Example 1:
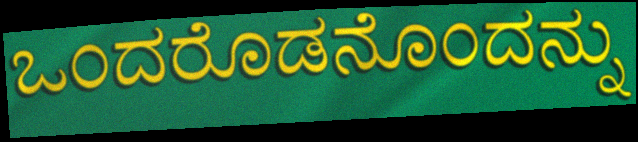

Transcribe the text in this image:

ಒಂದರೊಡನೊಂದನ್ನು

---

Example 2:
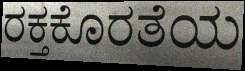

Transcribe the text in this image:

ರಕ್ತಕೊರತೆಯ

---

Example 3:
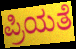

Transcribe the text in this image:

ಪ್ರಿಯತೆ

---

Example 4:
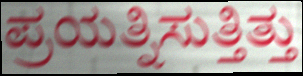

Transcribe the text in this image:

ಪ್ರಯತ್ನಿಸುತ್ತಿತ್ತು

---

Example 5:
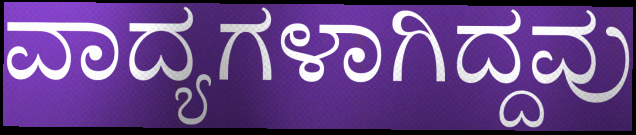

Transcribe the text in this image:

ವಾದ್ಯಗಳಾಗಿದ್ದವು